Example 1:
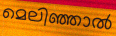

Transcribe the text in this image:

മെലിഞ്ഞാൽ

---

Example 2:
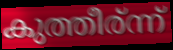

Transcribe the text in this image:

കുത്തീര്ന്ന്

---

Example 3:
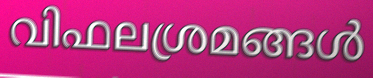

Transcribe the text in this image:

വിഫലശ്രമങ്ങൾ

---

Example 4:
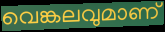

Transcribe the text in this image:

വെങ്കലവുമാണ്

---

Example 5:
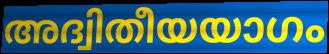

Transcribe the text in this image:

അദ്വിതീയയാഗം